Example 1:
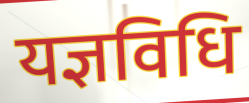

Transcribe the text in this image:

यज्ञविधि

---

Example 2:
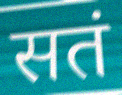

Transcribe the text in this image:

सतं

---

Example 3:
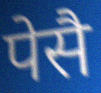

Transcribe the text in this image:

पेसै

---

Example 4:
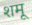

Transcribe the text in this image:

शमू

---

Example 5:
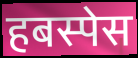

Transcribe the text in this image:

हबस्पेस